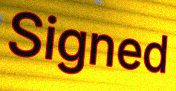
Signed